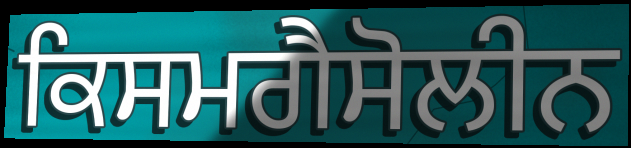
ਕਿਸਮਗੈਸੋਲੀਨ